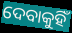
ଦେବାକୁହିଁ